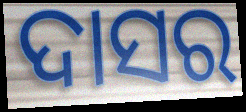
ଦାସର